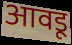
आवडू